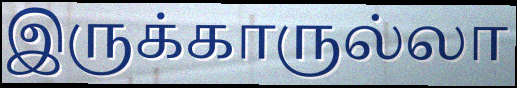
இருக்காருல்லா